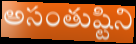
అసంతుష్టిని